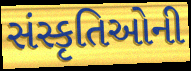
સંસ્કૃતિઓની